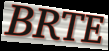
BRTE